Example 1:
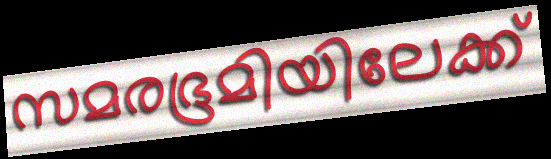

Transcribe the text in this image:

സമരഭൂമിയിലേക്ക്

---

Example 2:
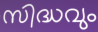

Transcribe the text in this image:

സിദ്ധവും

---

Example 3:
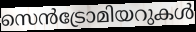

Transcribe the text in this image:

സെൻട്രോമിയറുകൾ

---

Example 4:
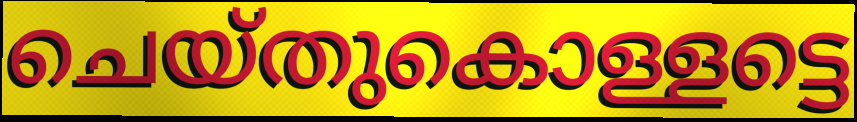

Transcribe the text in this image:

ചെയ്തുകൊള്ളട്ടെ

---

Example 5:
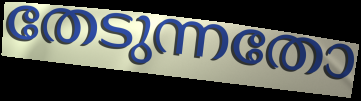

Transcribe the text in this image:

തേടുന്നതോ